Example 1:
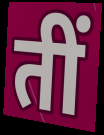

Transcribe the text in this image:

तीं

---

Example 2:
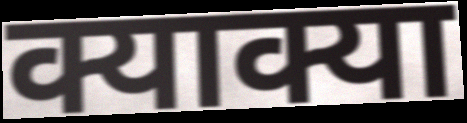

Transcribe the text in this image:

क्याक्या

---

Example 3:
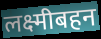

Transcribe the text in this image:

लक्ष्मीबहन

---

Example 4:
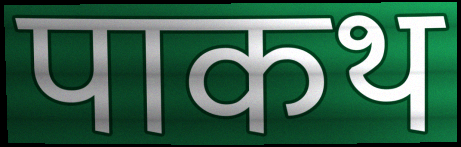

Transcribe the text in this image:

पाकथ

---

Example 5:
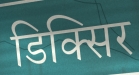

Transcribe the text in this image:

डिक्सिर